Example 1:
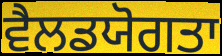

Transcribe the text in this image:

ਵੈਲਡਯੋਗਤਾ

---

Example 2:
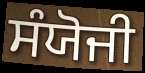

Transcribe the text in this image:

ਸੰਯੋਜੀ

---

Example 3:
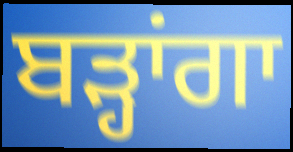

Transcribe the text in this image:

ਬੜ੍ਹਾਂਗਾ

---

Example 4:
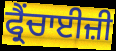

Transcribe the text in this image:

ਫ੍ਰੈਂਚਾਈਜ਼ੀ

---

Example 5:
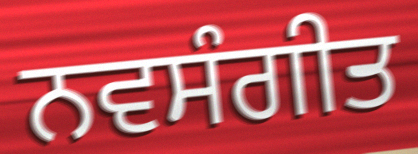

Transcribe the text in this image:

ਨਵਸੰਗੀਤ